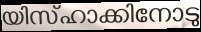
യിസ്ഹാക്കിനോടു